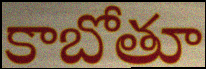
కాబోతూ